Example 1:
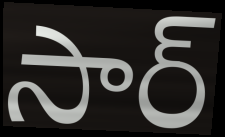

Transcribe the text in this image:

సార్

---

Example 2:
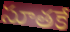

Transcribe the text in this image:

సూతకే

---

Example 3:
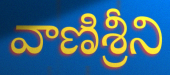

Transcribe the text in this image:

వాణిశ్రీని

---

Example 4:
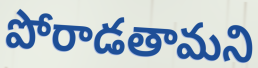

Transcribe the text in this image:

పోరాడతామని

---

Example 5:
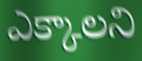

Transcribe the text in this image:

ఎక్కాలని